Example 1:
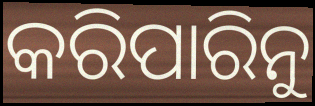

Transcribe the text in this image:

କରିପାରିନୁ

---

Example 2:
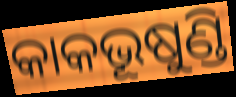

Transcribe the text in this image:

କାକଭୂଷୁଣ୍ଡି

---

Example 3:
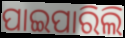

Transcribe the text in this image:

ପାଇପାରିଲି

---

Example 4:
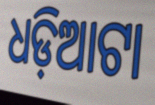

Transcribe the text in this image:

ଧଡ଼ିଆଟା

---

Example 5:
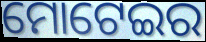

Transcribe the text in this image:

ମୋଟେଇର